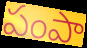
పంపా